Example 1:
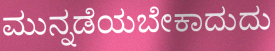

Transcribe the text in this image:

ಮುನ್ನಡೆಯಬೇಕಾದುದು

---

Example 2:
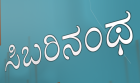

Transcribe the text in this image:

ಸಿಬರಿನಂಥ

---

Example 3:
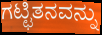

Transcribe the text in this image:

ಗಟ್ಟಿತನವನ್ನು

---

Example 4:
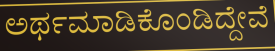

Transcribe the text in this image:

ಅರ್ಥಮಾಡಿಕೊಂಡಿದ್ದೇವೆ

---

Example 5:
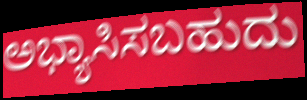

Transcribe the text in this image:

ಅಭ್ಯಾಸಿಸಬಹುದು